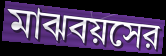
মাঝবয়সের